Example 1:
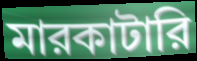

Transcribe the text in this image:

মারকাটারি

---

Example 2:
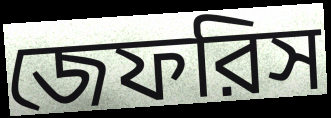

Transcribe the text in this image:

জেফরিস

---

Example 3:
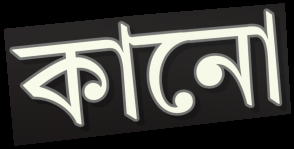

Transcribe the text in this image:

কানো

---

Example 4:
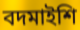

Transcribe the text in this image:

বদমাইশি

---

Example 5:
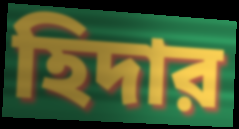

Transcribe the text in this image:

হিদার